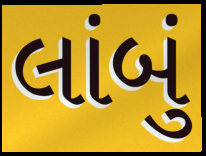
લાંબું